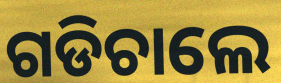
ଗଡିଚାଲେ